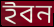
ইবন